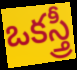
ఒకస్త్రీ